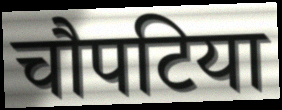
चौपटिया